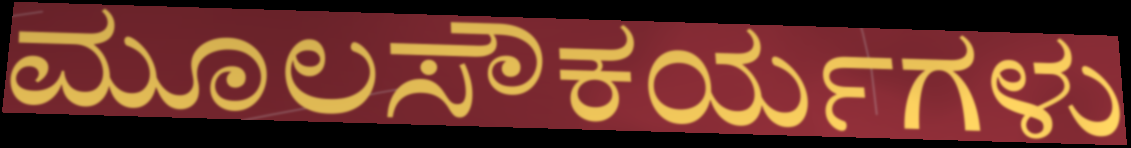
ಮೂಲಸೌಕರ್ಯಗಳು